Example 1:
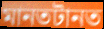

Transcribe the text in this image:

মানতটানত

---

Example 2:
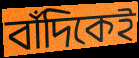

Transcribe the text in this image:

বাঁদিকেই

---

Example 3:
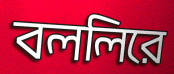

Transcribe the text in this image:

বললিরে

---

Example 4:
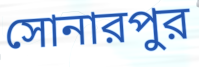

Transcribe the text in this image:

সোনারপুর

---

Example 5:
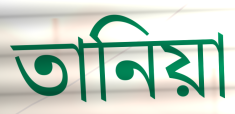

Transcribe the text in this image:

তানিয়া